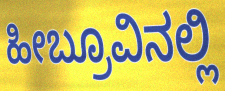
ಹೀಬ್ರೂವಿನಲ್ಲಿ